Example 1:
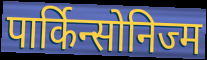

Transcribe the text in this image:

पार्किन्सोनिज्म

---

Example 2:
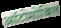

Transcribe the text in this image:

ऑटोमोबिल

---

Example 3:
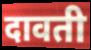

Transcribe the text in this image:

दावती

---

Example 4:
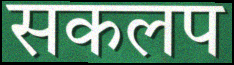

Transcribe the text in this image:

सकलप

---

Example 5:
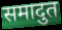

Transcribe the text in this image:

समादुत